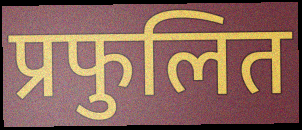
प्रफुलित